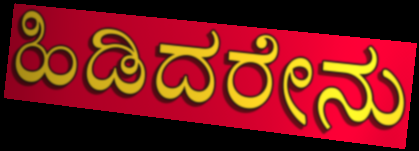
ಹಿಡಿದರೇನು